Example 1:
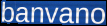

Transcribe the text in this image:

banvano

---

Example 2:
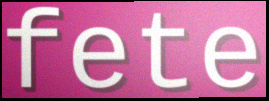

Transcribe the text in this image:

fete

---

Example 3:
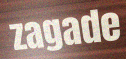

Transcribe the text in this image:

zagade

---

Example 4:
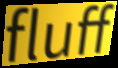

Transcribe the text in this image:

fluff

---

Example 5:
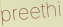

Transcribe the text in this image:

preethi